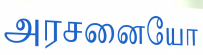
அரசனையோ